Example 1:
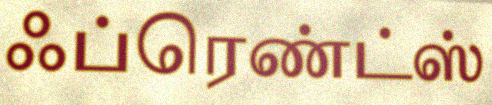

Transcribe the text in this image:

ஃப்ரெண்ட்ஸ்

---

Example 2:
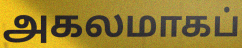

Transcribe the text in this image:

அகலமாகப்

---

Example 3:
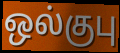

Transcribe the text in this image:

ஒல்குபு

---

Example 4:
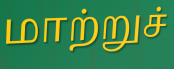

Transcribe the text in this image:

மாற்றுச்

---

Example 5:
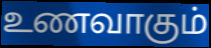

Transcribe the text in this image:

உணவாகும்